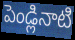
పెండ్లినాటి